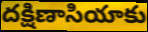
దక్షిణాసియాకు